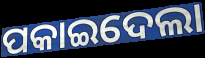
ପକାଇଦେଲା